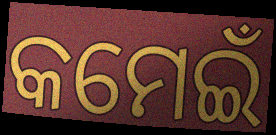
କମେଇଁ